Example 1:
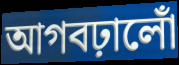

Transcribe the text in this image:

আগবঢ়ালোঁ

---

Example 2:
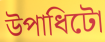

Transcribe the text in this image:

উপাধিটো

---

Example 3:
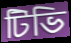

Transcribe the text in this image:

টিভি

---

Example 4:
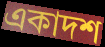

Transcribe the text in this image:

একাদশ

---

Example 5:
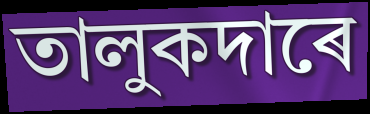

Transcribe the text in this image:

তালুকদাৰে